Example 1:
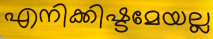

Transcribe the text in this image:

എനിക്കിഷ്ടമേയല്ല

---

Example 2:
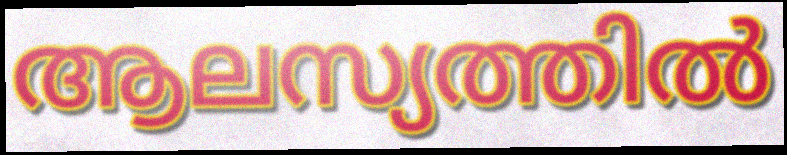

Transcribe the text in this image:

ആലസ്യത്തിൽ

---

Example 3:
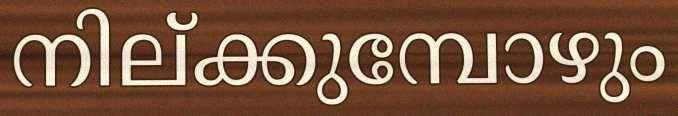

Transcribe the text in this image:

നില്ക്കുമ്പോഴും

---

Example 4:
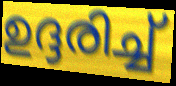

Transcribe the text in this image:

ഉദ്ദരിച്ച്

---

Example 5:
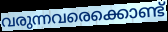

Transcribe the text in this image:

വരുന്നവരെക്കൊണ്ട്